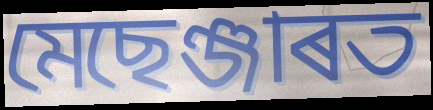
মেছেঞ্জাৰত